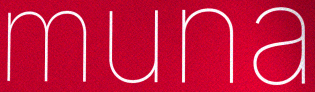
muna